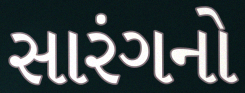
સારંગનો